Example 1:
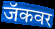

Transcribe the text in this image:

जॅकवर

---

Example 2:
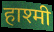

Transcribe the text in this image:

हाश्मी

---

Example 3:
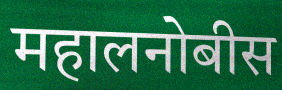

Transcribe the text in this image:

महालनोबीस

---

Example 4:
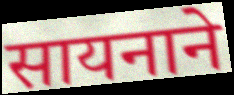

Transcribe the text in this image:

सायनाने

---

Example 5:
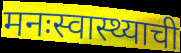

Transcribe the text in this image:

मनःस्वास्थ्याची